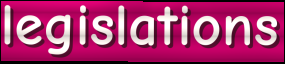
legislations